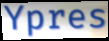
Ypres